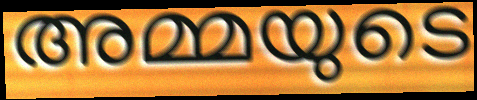
അമ്മയുടെ